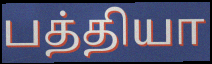
பத்தியா